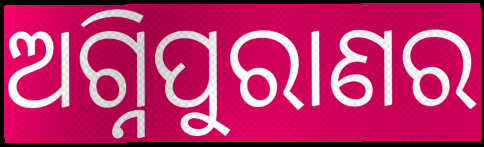
ଅଗ୍ନିପୁରାଣର